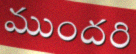
ముందరి